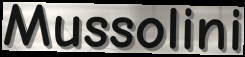
Mussolini